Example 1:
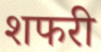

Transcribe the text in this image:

शफरी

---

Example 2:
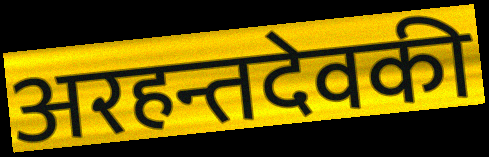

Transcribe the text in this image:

अरहन्तदेवकी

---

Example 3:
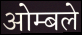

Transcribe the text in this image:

ओम्बले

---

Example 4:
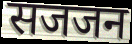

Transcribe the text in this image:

सजजन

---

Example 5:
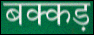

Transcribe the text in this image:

बक्कड़